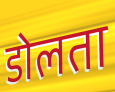
डोलता